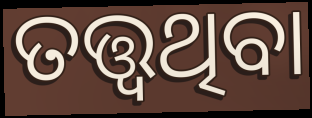
ତତ୍ତ୍ୱଥିବା